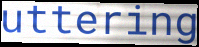
uttering